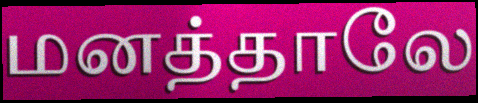
மனத்தாலே